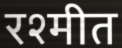
रश्मीत